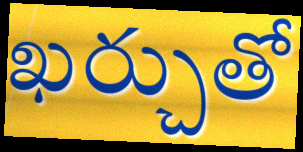
ఖర్చుతో